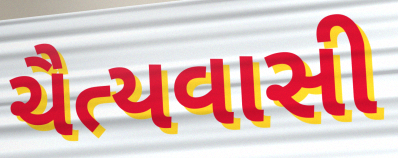
ચૈત્યવાસી